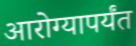
आरोग्यापर्यंत